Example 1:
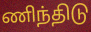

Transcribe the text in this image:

ணிந்திடு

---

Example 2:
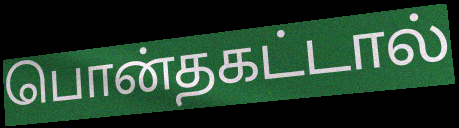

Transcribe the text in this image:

பொன்தகட்டால்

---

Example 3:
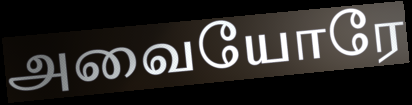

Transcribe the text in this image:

அவையோரே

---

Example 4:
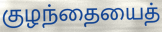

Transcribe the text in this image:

குழந்தையைத்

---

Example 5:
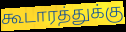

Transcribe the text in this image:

கூடாரத்துக்கு